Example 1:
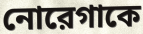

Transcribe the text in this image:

নোরেগাকে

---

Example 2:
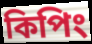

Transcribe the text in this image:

কিপিং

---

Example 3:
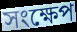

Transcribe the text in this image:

সংক্ষেপ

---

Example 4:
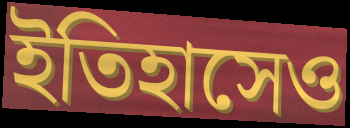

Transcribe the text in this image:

ইতিহাসেও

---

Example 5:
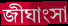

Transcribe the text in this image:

জীঘাংসা